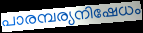
പാരമ്പര്യനിഷേധം